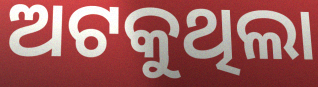
ଅଟକୁଥିଲା